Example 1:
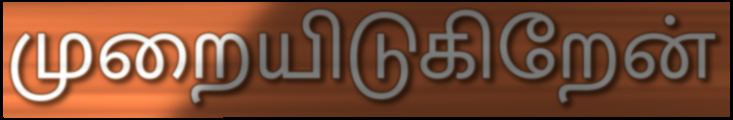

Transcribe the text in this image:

முறையிடுகிறேன்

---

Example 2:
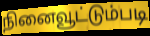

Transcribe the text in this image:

நினைவூட்டும்படி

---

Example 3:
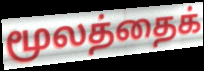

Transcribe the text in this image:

மூலத்தைக்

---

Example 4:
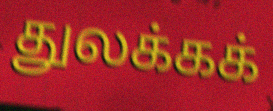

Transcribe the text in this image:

துலக்கக்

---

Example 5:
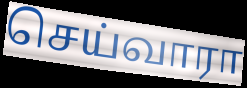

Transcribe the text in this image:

செய்வாரா